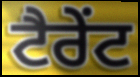
ਟੈਰੇਂਟ